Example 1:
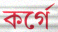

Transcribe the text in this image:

কর্গে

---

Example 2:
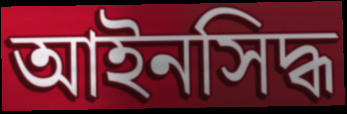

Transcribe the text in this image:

আইনসিদ্ধ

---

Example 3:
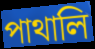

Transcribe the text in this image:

পাথালি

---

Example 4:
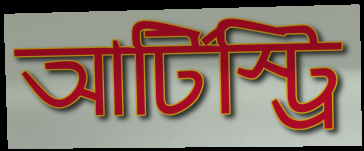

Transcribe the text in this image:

আর্টিস্ট্রি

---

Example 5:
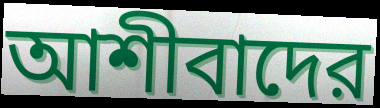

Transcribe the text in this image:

আশীবাদের